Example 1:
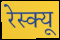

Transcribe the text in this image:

रेस्क्यू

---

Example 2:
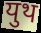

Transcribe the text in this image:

युथ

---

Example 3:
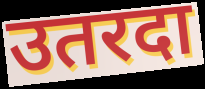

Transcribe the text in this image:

उतरदा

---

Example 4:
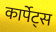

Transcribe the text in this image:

कार्पेट्स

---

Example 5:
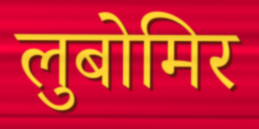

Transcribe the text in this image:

लुबोमिर